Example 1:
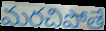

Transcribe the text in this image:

మరచిపోతే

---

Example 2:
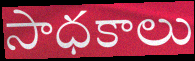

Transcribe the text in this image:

సాధకాలు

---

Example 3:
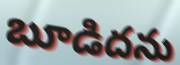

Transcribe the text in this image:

బూడిదను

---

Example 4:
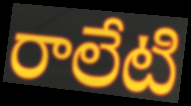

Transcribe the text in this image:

రాలేటి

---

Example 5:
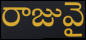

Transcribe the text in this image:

రాజువై